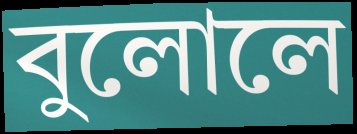
বুলোলে